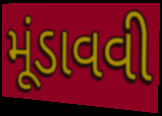
મૂંડાવવી